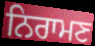
ਨਿਰਾਮਣ